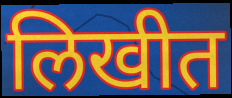
लिखीत